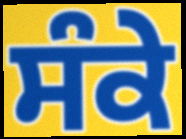
ਸੰਕੇ